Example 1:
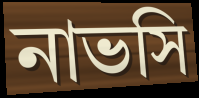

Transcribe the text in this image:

নাভসি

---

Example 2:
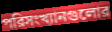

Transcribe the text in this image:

পরিসংখ্যানগুলোর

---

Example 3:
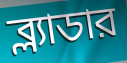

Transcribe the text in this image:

ব্ল্যাডার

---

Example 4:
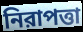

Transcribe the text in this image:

নিরাপত্তা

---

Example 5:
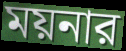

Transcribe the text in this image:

ময়নার